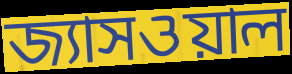
জ্যাসওয়াল